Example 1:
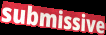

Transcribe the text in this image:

submissive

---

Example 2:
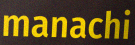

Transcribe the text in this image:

manachi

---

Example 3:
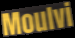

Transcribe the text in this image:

Moulvi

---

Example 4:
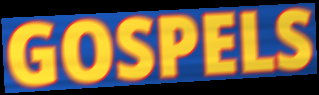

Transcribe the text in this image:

GOSPELS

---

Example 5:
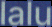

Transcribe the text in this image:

lalu